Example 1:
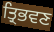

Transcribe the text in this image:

ਤ੍ਰਿਭਵਣ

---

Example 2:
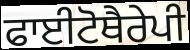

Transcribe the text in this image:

ਫਾਈਟੋਥੈਰੇਪੀ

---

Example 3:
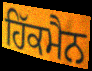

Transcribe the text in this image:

ਹਿੱਕਮੈਨ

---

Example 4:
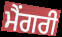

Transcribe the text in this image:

ਮੈਂਗਰੀ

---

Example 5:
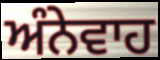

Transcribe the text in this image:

ਅੰਨੇਵਾਹ